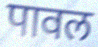
पावल